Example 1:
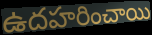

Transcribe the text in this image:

ఉదహరించాయి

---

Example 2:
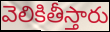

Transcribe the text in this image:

వెలికితీస్తారు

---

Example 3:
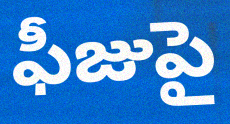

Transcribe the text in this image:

ఫీజుపై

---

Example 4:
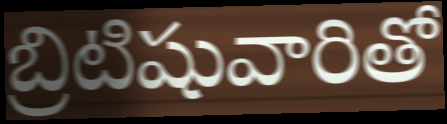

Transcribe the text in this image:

బ్రిటిషువారితో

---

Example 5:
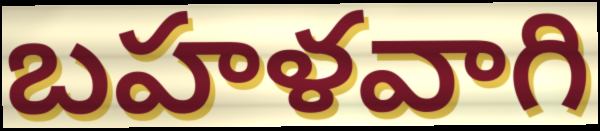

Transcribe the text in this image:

బహళవాగి